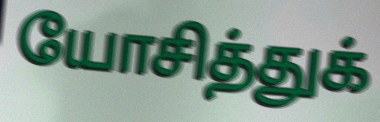
யோசித்துக்